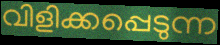
വിളിക്കപ്പെടുന്ന